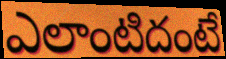
ఎలాంటిదంటే